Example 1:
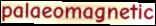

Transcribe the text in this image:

palaeomagnetic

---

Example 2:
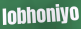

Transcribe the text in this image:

lobhoniyo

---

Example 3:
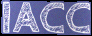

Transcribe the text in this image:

IACC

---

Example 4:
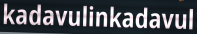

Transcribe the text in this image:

kadavulinkadavul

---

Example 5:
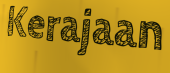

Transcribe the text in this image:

Kerajaan